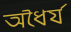
অধৈর্য